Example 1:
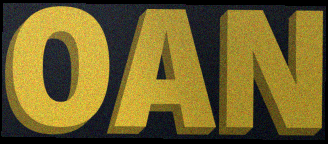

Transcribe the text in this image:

OAN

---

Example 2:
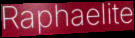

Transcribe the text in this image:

Raphaelite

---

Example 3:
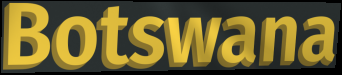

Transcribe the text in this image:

Botswana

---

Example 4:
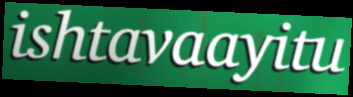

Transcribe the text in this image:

ishtavaayitu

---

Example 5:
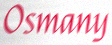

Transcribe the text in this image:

Osmany